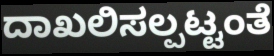
ದಾಖಲಿಸಲ್ಪಟ್ಟಂತೆ